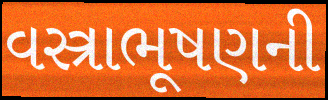
વસ્ત્રાભૂષણની